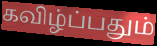
கவிழ்ப்பதும்